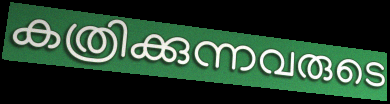
കത്രിക്കുന്നവരുടെ